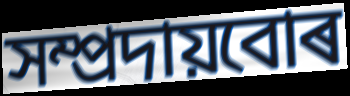
সম্প্ৰদায়বোৰ